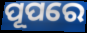
ପୂପରେ